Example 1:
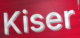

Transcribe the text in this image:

Kiser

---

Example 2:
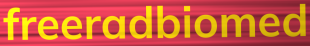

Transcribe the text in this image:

freeradbiomed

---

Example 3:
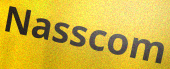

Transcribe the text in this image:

Nasscom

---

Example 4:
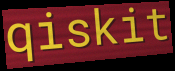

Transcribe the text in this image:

qiskit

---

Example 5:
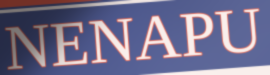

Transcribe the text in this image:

NENAPU